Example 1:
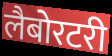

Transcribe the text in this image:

लैबोरटरी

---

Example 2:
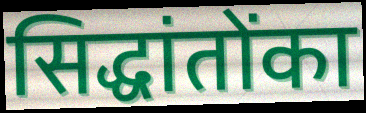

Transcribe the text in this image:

सिद्धांतोंका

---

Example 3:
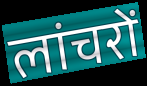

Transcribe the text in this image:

लांचरों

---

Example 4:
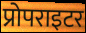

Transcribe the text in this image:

प्रोपराइटर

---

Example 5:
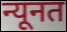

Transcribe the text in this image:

न्यूनत